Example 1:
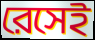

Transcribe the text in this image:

রেসেই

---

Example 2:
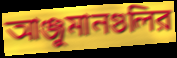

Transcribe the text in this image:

আঞ্জুমানগুলির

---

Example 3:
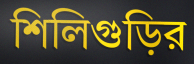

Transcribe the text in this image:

শিলিগুড়ির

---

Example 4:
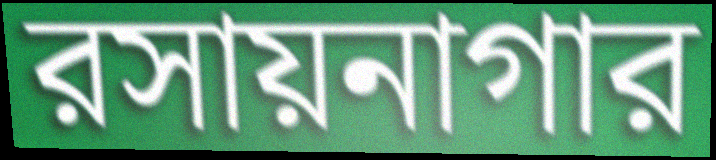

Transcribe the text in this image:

রসায়নাগার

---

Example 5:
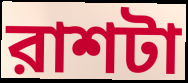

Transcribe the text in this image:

রাশটা